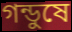
গন্ডুষে